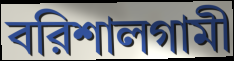
বরিশালগামী